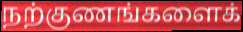
நற்குணங்களைக்